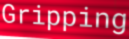
Gripping